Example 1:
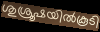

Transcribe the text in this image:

ശുശ്രൂഷയിൽകൂടി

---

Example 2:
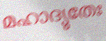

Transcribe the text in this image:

മഹാദ്യുതേഃ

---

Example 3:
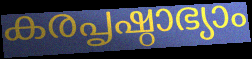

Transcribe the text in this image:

കരപൃഷ്ഠാഭ്യാം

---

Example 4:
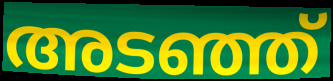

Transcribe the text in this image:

അടഞ്ഞ്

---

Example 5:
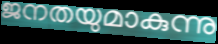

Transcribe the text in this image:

ജനതയുമാകുന്നു